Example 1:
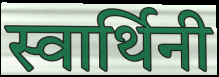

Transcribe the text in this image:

स्वार्थिनी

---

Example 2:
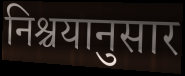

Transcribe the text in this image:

निश्चयानुसार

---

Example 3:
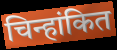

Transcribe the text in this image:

चिन्हांकित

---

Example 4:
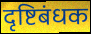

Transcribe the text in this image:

दृष्टिबंधक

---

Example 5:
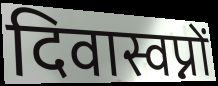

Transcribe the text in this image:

दिवास्वप्नों